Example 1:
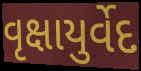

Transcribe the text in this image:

વૃક્ષાયુર્વેદ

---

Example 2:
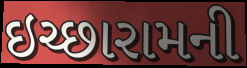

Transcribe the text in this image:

ઇચ્છારામની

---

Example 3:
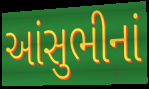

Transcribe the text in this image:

આંસુભીનાં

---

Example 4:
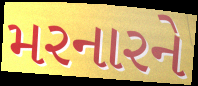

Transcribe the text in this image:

મરનારને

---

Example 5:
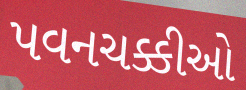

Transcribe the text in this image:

પવનચક્કીઓ